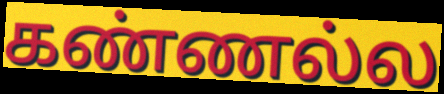
கண்ணல்ல